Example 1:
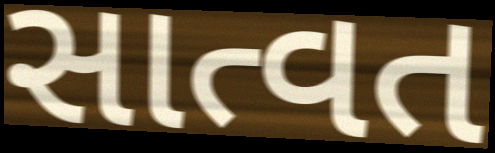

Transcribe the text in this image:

સાત્વત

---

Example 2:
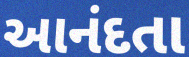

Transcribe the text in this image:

આનંદતા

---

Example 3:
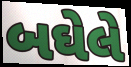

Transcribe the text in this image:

બઘેલે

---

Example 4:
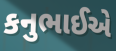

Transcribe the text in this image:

કનુભાઈએ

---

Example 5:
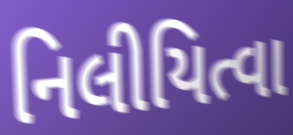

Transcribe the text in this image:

નિલીયિત્વા